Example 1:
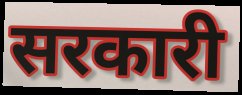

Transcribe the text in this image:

सरकारी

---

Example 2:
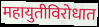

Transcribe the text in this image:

महायुतीविरोधात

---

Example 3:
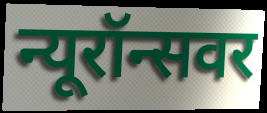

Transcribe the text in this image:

न्यूरॉन्सवर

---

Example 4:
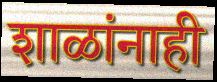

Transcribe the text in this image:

शाळांनाही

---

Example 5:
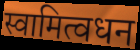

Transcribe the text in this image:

स्वामित्वधन